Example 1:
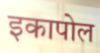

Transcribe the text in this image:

इकापोल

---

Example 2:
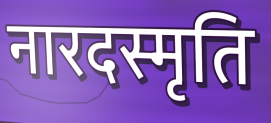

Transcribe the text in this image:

नारदस्मृति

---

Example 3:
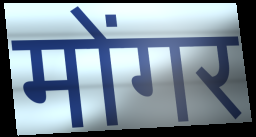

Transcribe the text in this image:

मोंगर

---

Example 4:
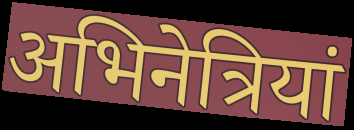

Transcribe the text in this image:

अभिनेत्रियां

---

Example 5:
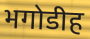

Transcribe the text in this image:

भगोडीह